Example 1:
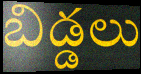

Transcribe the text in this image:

బిడ్డలు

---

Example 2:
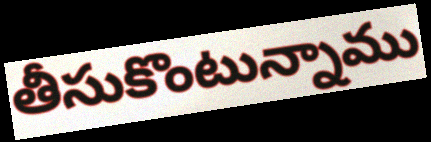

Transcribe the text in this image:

తీసుకొంటున్నాము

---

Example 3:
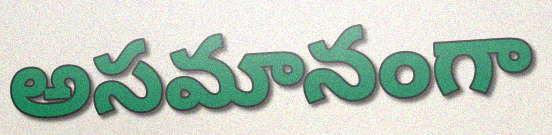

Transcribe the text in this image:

అసమానంగా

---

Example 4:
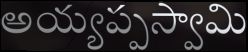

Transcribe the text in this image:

అయ్యప్పస్వామి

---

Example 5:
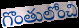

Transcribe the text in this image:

గొంతులోంచి